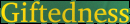
Giftedness